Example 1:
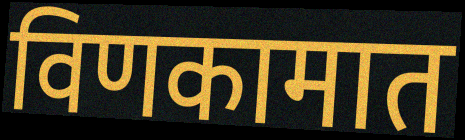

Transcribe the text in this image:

विणकामात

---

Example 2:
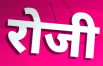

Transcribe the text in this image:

रोजी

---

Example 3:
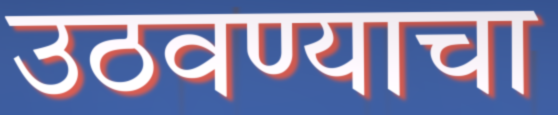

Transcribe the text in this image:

उठवण्याचा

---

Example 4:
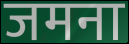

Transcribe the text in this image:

जमना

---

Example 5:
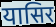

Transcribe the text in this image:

यासिर